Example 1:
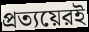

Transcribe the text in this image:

প্রত্যয়েরই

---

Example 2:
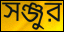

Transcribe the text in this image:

সঞ্জুর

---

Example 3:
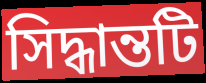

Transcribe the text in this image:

সিদ্ধান্তটি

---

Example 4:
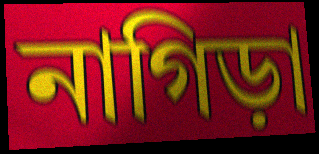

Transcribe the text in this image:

নাগিড়া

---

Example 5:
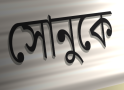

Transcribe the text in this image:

সোনুকে